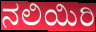
ನಲಿಯಿರಿ